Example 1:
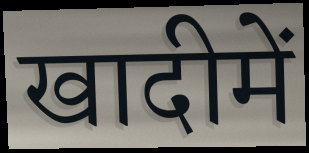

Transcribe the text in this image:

खादीमें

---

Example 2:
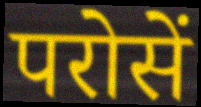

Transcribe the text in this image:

परोसें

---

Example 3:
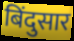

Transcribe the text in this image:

बिंदुसार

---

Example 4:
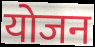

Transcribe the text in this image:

योजन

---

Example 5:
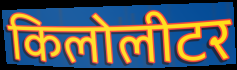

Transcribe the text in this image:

किलोलीटर